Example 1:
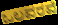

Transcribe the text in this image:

ಒಲವರವೆ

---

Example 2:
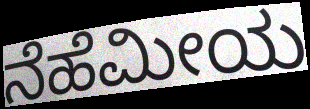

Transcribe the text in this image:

ನೆಹೆಮೀಯ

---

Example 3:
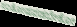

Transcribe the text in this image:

ಸಂತೋಷಪಡಬೇಕೋ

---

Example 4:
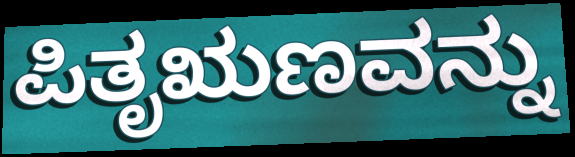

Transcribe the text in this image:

ಪಿತೃಋಣವನ್ನು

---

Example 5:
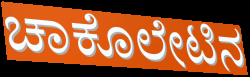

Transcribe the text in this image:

ಚಾಕೊಲೇಟಿನ